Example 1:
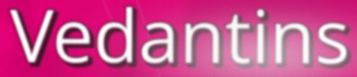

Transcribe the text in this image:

Vedantins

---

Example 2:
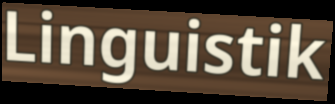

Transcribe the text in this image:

Linguistik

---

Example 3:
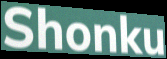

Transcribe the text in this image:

Shonku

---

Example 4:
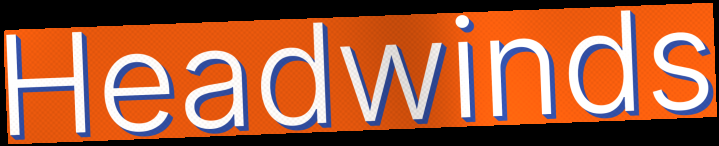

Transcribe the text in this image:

Headwinds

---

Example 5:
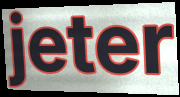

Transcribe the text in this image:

jeter